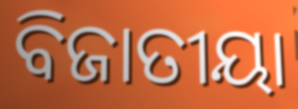
ବିଜାତୀୟା